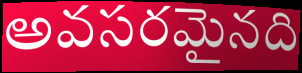
అవసరమైనది